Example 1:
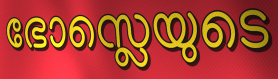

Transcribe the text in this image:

ഭോസ്ലെയുടെ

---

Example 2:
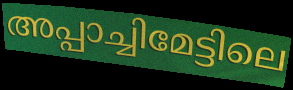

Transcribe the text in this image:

അപ്പാച്ചിമേട്ടിലെ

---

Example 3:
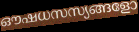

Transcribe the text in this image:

ഔഷധസസ്യങ്ങളോ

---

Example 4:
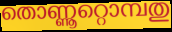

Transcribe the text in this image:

തൊണ്ണൂറ്റൊമ്പതു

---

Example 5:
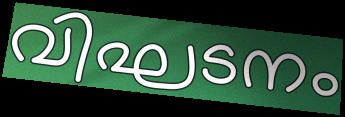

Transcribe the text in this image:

വിഘടനം